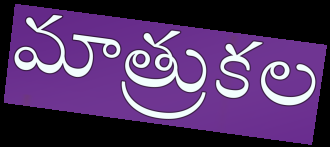
మాత్రుకల